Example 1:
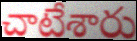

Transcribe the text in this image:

చాటేశారు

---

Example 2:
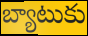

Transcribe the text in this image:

బ్యాటుకు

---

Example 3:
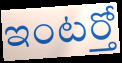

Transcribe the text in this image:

ఇంటర్తో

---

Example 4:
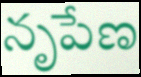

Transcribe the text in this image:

నృపేణ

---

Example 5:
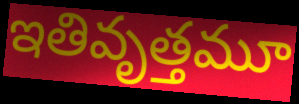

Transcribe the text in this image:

ఇతివృత్తమూ